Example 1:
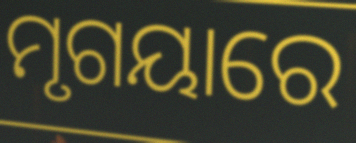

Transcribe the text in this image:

ମୃଗୟାରେ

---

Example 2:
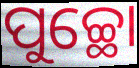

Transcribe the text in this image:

ପୁଚ୍ଛୋ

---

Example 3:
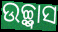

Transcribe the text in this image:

ଉଚ୍ଛ୍ୱାସ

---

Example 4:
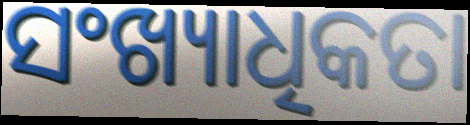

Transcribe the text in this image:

ସଂଖ୍ୟାଧିକତା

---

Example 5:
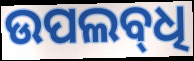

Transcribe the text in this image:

ଉପଲବ୍‌ଧି